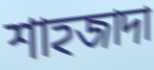
শাহজাদা